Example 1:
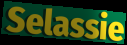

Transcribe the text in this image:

Selassie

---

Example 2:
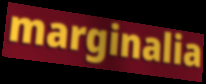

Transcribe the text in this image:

marginalia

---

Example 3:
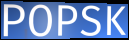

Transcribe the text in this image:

POPSK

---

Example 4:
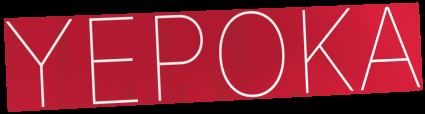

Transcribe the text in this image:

YEPOKA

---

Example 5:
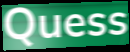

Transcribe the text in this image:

Quess